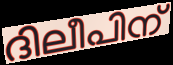
ദിലീപിന്